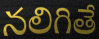
నలిగితే